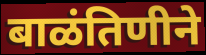
बाळंतिणीने